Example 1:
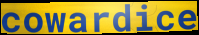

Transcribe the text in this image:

cowardice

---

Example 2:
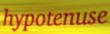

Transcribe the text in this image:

hypotenuse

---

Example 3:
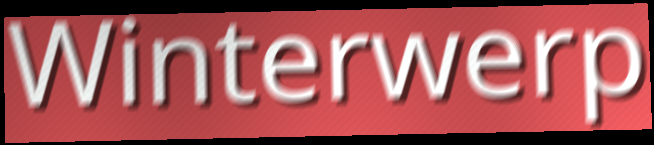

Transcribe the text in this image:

Winterwerp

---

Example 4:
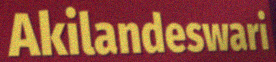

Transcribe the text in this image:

Akilandeswari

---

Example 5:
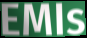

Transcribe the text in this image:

EMIs